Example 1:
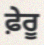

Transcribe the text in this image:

ਫ਼ੇਰੂ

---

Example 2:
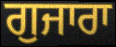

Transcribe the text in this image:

ਗੁਜਾਰਾ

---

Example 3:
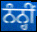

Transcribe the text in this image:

ਨੰਨ੍ਹੀਂ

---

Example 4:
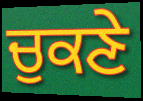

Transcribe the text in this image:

ਚੁਕਣੇ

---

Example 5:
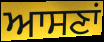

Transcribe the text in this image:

ਆਸਣਾਂ